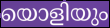
യൊളിയും